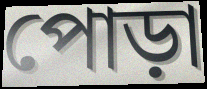
পোড়া